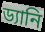
ড্যানি